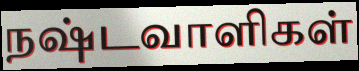
நஷ்டவாளிகள்